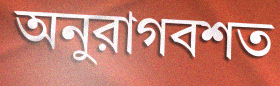
অনুরাগবশত